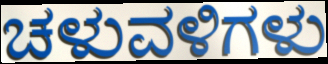
ಚಳುವಳಿಗಳು